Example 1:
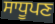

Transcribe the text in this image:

ਸਾਧੂਪਣ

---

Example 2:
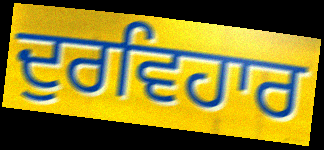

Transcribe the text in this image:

ਦੁਰਵਿਹਾਰ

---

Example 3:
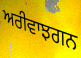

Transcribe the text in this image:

ਅਰੀਵਾਝਗਨ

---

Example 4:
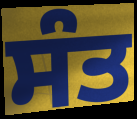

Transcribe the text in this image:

ਸੰਤ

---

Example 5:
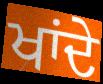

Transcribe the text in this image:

ਖਾਂਦੇ